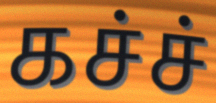
கச்ச்